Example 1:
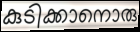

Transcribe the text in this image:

കുടിക്കാനൊരു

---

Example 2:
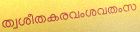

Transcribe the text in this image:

ത്വശീതകരവംശവതംസ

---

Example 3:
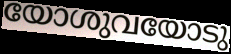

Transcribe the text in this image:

യോശുവയോടു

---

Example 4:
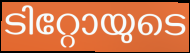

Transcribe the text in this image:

ടിറ്റോയുടെ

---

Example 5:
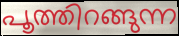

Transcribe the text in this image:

പൂത്തിറങ്ങുന്ന